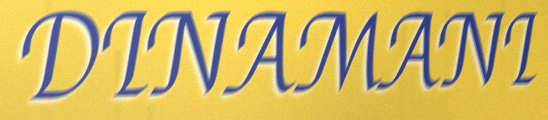
DINAMANI